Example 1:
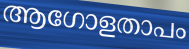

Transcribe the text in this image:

ആഗോളതാപം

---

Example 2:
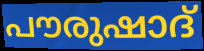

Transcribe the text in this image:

പൗരുഷാദ്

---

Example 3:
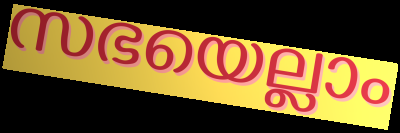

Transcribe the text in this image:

സഭയെല്ലാം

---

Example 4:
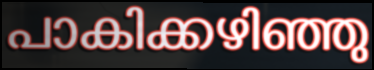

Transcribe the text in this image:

പാകിക്കഴിഞ്ഞു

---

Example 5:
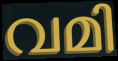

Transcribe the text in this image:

വമി